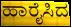
ಹಾರೈಸಿದ